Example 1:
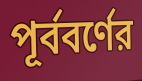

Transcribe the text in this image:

পূর্ববর্ণের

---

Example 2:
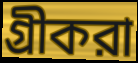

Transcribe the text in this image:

গ্রীকরা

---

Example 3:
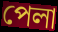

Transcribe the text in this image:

পেলা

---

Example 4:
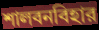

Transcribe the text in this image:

শালবনবিহার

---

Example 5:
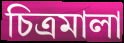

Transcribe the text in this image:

চিত্রমালা